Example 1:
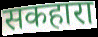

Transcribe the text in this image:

सकहारा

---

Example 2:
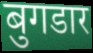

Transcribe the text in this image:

बुगडार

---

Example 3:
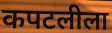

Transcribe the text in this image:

कपटलीला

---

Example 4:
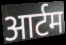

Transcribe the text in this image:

आर्टम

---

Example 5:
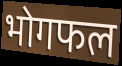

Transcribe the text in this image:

भोगफल